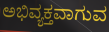
ಅಭಿವ್ಯಕ್ತವಾಗುವ